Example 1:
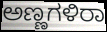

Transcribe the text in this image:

ಅಣ್ಣಗಳಿರಾ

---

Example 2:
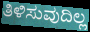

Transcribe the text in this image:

ತಿಳಿಸುವುದಿಲ್ಲ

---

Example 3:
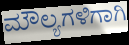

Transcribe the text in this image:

ಮೌಲ್ಯಗಳಿಗಾಗಿ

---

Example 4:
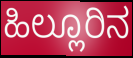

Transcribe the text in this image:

ಹಿಲ್ಲೂರಿನ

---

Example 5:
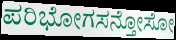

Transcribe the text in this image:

ಪರಿಭೋಗಸನ್ತೋಸೋ